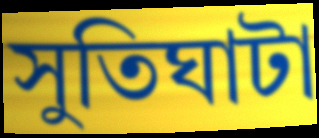
সুতিঘাটা